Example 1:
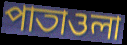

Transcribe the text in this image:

পাতাওলা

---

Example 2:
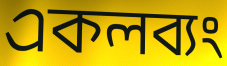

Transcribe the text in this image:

একলব্যং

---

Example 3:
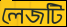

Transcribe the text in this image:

লেজটি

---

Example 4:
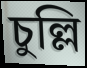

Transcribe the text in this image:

চুল্লি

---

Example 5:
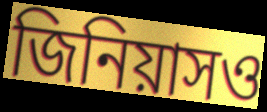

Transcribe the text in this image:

জিনিয়াসও